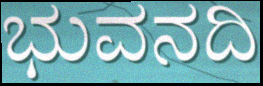
ಭುವನದಿ